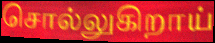
சொல்லுகிறாய்